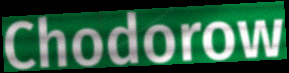
Chodorow